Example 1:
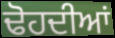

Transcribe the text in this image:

ਢੋਹਦੀਆਂ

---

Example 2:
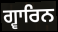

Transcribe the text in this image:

ਗ੍ਵਾਰਿਨ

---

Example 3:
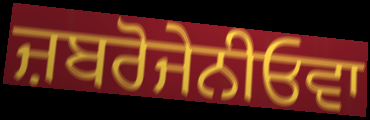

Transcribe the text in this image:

ਜ਼ਬਰੋਜੇਨੀਓਵਾ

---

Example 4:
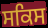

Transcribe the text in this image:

ਸਕਿਸ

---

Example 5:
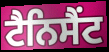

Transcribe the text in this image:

ਟੈਨਿਸੈਂਟ